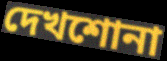
দেখশোনা